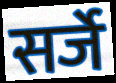
सर्जे